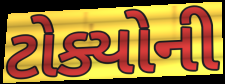
ટોક્યોની